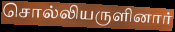
சொல்லியருளினார்